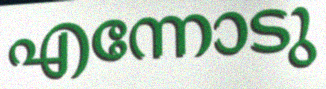
എന്നോടു